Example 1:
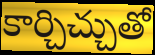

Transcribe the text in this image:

కార్చిచ్చుతో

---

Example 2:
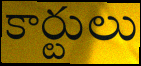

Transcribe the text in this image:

కార్టులు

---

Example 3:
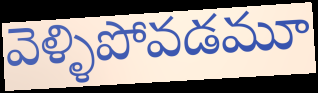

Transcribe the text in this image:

వెళ్ళిపోవడమూ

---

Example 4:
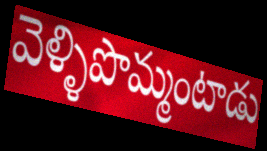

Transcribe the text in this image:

వెళ్ళిపొమ్మంటాడు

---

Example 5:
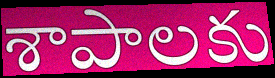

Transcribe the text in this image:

శాపాలకు